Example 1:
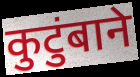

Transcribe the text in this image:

कुटुंबाने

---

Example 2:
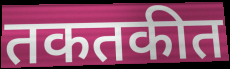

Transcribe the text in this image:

तकतकीत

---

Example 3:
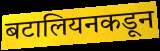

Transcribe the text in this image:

बटालियनकडून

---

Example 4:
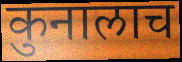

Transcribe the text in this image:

कुनालाच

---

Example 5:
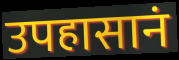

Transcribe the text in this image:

उपहासानं